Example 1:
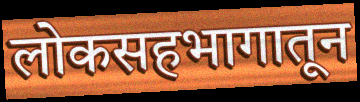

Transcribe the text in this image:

लोकसहभागातून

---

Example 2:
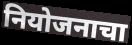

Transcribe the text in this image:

नियोजनाचा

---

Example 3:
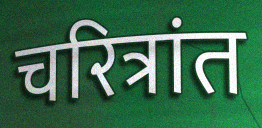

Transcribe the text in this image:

चरित्रांत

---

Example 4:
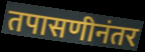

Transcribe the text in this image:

तपासणीनंतर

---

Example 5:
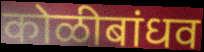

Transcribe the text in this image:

कोळीबांधव